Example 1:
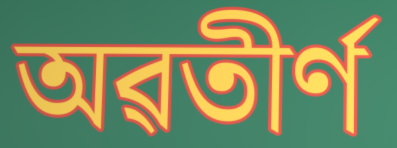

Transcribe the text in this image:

অৱতীৰ্ণ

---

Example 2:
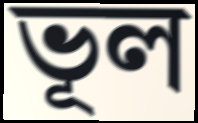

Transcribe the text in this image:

ভূল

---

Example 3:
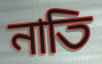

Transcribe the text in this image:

নাতি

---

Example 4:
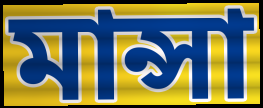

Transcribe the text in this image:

মান্সা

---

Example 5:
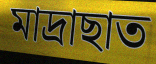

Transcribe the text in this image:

মাদ্ৰাছাত